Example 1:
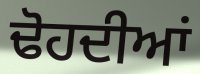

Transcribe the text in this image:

ਢੋਹਦੀਆਂ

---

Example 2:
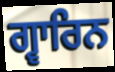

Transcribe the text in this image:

ਗ੍ਵਾਰਿਨ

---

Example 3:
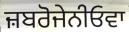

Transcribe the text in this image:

ਜ਼ਬਰੋਜੇਨੀਓਵਾ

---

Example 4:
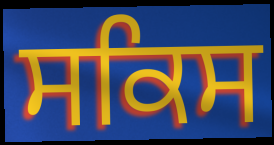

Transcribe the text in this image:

ਸਕਿਸ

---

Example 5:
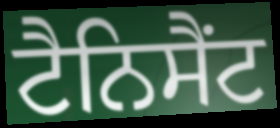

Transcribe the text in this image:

ਟੈਨਿਸੈਂਟ